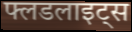
फ्लडलाइट्स